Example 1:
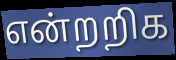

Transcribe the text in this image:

என்றறிக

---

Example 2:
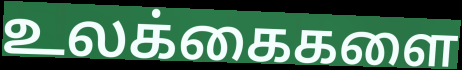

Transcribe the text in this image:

உலக்கைகளை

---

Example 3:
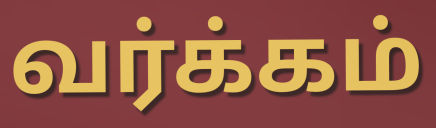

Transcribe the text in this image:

வர்க்கம்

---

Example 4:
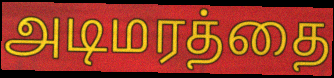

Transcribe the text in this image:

அடிமரத்தை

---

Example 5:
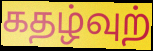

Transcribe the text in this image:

கதழ்வுற்